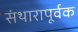
संथारापूर्वक